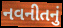
નવનીતનું